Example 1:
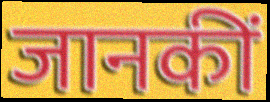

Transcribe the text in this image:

जानकीं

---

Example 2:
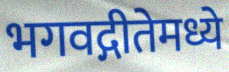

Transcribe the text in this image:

भगवद्गीतेमध्ये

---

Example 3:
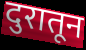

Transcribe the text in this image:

दुरातून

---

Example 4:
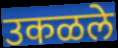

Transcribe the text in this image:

उकळले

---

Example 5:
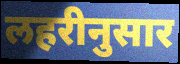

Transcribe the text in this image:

लहरीनुसार